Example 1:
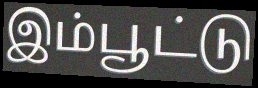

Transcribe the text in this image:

இம்பூட்டு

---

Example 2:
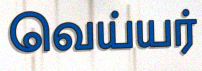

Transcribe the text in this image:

வெய்யர்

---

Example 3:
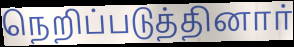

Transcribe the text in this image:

நெறிப்படுத்தினார்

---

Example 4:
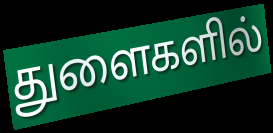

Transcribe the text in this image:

துளைகளில்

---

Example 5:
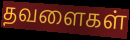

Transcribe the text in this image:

தவளைகள்